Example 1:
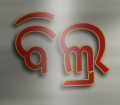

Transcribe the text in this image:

ବିଲ୍ର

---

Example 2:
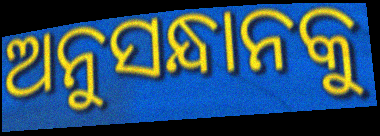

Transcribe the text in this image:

ଅନୁସନ୍ଧାନକୁ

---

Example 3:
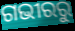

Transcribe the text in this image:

ଗଭୀରରୁ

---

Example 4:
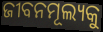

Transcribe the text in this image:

ଜୀବନମୂଲ୍ୟକୁ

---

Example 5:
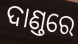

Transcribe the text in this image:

ଦାଣ୍ଡରେ